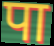
पा